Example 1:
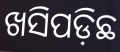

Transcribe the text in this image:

ଖସିପଡ଼ିଛ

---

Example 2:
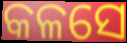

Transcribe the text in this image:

କଳସେ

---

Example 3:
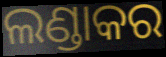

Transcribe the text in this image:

ଲଣ୍ଡାକର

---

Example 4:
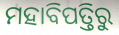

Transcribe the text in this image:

ମହାବିପତ୍ତିରୁ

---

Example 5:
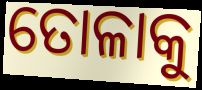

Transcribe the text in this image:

ତୋଳାକୁ